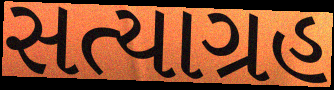
સત્‍યાગ્રહ